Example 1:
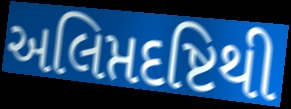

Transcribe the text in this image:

અલિપ્તદષ્ટિથી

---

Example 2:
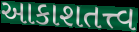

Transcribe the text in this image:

આકાશતત્ત્વ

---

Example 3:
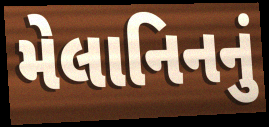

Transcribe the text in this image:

મેલાનિનનું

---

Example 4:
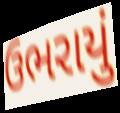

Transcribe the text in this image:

ઉભરાયું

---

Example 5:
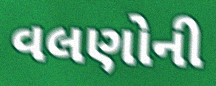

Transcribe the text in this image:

વલણોની